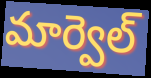
మార్వెల్